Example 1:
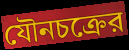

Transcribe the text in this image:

যৌনচক্রের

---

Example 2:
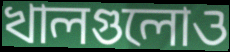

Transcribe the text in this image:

খালগুলোও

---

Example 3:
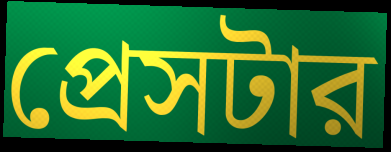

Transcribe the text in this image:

প্রেসটার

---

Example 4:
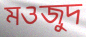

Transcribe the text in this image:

মওজুদ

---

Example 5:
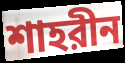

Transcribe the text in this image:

শাহরীন